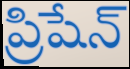
ప్రిషేన్